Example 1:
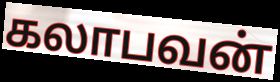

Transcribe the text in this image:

கலாபவன்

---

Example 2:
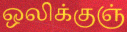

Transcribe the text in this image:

ஒலிக்குஞ்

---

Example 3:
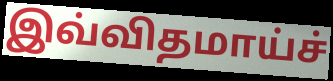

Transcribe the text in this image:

இவ்விதமாய்ச்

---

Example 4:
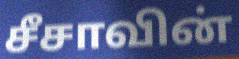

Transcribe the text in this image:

சீசாவின்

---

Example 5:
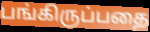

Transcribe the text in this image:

பங்கிருப்பதை